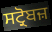
ਸਟ੍ਰੋਬਜ਼